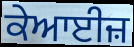
ਕੇਆਈਜ਼